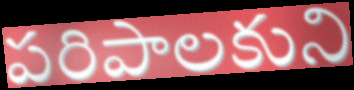
పరిపాలకుని